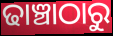
ଢାଞ୍ଚାଠାରୁ